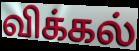
விக்கல்